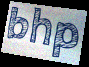
bhp